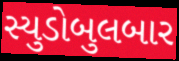
સ્યુડોબુલબાર